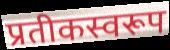
प्रतीकस्वरूप